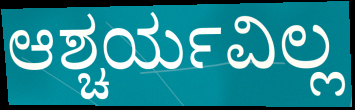
ಆಶ್ಚರ್ಯವಿಲ್ಲ